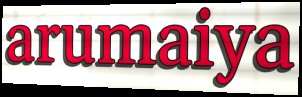
arumaiya